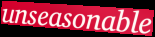
unseasonable